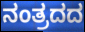
ನಂತ್ರದದ